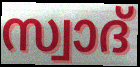
സ്വാദ്